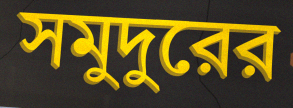
সমুদুরের